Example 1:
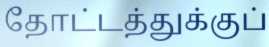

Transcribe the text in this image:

தோட்டத்துக்குப்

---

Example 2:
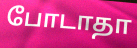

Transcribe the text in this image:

போடாதா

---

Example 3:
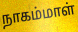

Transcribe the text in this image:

நாகம்மாள்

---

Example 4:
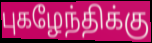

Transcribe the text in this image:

புகழேந்திக்கு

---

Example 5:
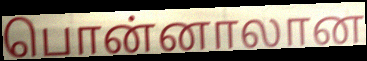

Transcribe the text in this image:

பொன்னாலான